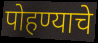
पोहण्याचे